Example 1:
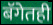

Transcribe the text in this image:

बॅगेतही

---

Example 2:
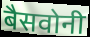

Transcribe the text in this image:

बैसवोनी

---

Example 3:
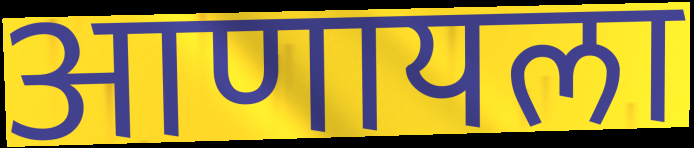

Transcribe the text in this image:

आणायला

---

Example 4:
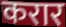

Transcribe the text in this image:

करार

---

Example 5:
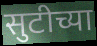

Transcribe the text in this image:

सुटीच्या